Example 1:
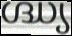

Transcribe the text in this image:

ഗ്ദ്ധ്യ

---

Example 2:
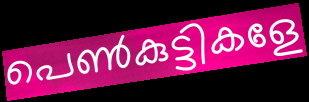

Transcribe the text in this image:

പെൺകുട്ടികളേ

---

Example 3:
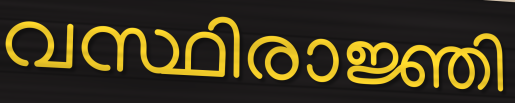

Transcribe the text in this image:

വസ്ഥിരാജ്ഞി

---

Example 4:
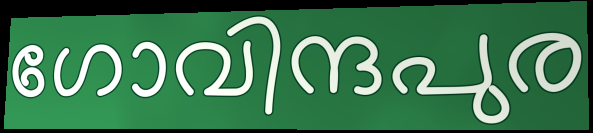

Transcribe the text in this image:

ഗോവിന്ദപുര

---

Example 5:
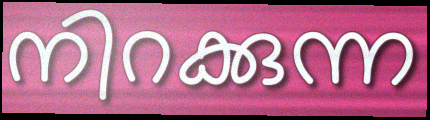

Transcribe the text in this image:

നിറക്കുന്ന